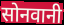
सोनवानी